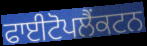
ਫਾਈਟੋਪਲੈਂਕਟਨ